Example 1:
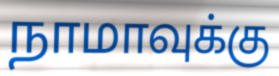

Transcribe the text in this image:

நாமாவுக்கு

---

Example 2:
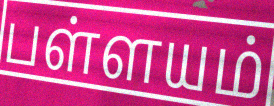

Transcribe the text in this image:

பள்ளயம்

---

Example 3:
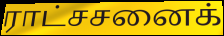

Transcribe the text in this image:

ராட்சசனைக்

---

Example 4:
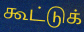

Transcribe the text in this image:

கூட்டுக்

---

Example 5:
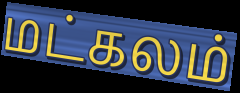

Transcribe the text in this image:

மட்கலம்